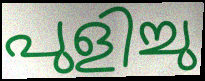
പുളിച്ചു